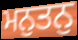
ਮਨੁਤਨੁ